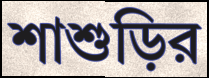
শাশুড়ির